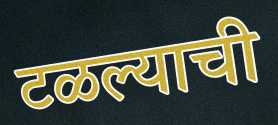
टळल्याची